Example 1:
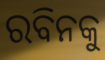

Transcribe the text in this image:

ରବିନକୁ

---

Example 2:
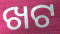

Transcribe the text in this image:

ଖଟ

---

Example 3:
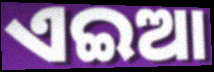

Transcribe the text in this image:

ଏଇଆ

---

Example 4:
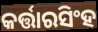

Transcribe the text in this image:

କର୍ତ୍ତାରସିଂହ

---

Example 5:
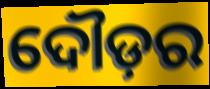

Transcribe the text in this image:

ଦୌଡ଼ର